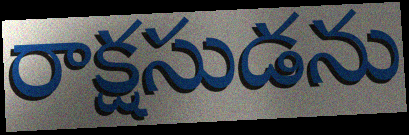
రాక్షసుడను